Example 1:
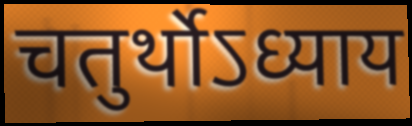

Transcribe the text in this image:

चतुर्थोऽध्याय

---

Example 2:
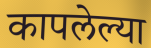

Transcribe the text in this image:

कापलेल्या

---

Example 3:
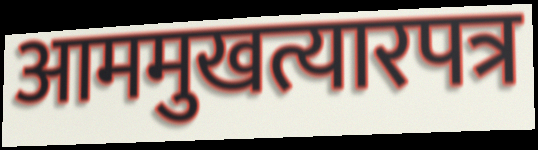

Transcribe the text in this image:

आममुखत्यारपत्र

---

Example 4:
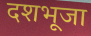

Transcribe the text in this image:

दशभूजा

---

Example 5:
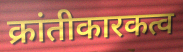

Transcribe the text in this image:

क्रांतीकारकत्व